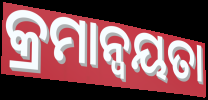
କ୍ରମାନ୍ବୟତା